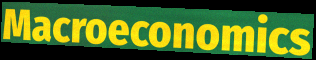
Macroeconomics